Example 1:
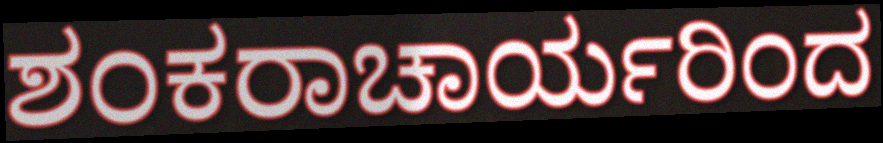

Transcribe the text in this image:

ಶಂಕರಾಚಾರ್ಯರಿಂದ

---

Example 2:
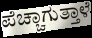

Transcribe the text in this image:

ಪೆಚ್ಚಾಗುತ್ತಾಳೆ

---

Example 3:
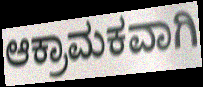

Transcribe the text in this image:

ಆಕ್ರಾಮಕವಾಗಿ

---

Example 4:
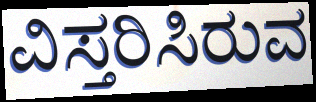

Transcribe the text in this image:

ವಿಸ್ತರಿಸಿರುವ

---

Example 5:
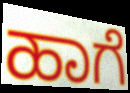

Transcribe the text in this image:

ಹಾಗೆ